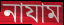
নাযাম